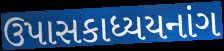
ઉપાસકાધ્યયનાંગ